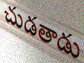
చుడతాడు